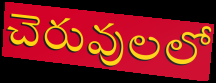
చెరువులలో